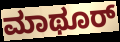
ಮಾಥೂರ್